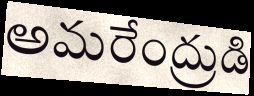
అమరేంద్రుడి